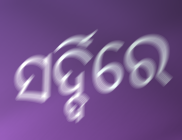
ସର୍ଦ୍ଦିରେ